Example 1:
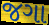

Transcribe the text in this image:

જગા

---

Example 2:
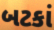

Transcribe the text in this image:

બટકાં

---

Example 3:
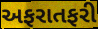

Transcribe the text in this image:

અફરાતફરી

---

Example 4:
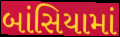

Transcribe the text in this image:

બાંસિયામાં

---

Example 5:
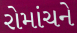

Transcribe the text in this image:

રોમાંચને